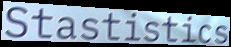
Stastistics